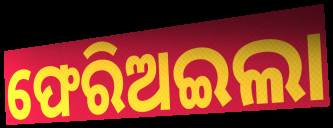
ଫେରିଅଇଲା